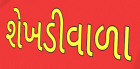
શેખડીવાળા